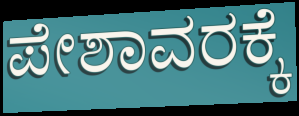
ಪೇಶಾವರಕ್ಕೆ